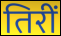
तिरीं